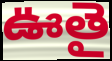
ఊతై